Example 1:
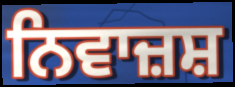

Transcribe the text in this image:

ਨਿਵਾਜ਼ਸ਼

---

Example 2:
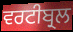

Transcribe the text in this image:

ਵਰਟੀਬ੍ਰਲ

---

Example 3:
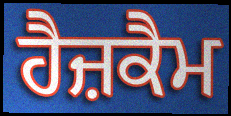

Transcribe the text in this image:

ਹੈਜ਼ਕੈਮ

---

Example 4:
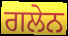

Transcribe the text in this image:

ਗਲੇਨ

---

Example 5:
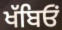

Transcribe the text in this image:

ਖੱਬਿਓਂ